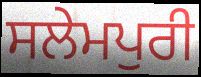
ਸਲੇਮਪੁਰੀ